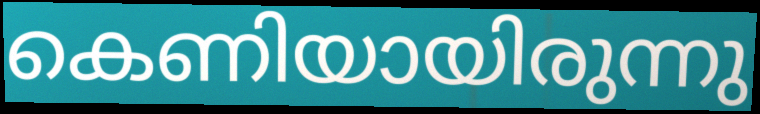
കെണിയായിരുന്നു